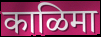
काळिमा